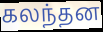
கலந்தன